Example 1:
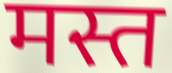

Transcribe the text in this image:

मस्त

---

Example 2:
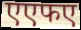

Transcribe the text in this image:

एएफए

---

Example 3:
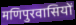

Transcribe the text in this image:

मणिपुरवासियों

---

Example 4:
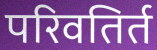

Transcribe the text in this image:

परिवतिर्त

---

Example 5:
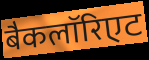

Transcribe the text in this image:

बैकलॉरिएट